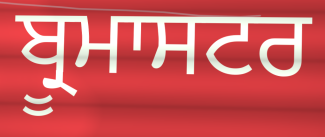
ਬ੍ਰੂਮਾਸਟਰ